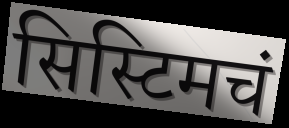
सिस्टिमचं